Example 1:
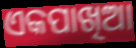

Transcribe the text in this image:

ଏକପାଖିଆ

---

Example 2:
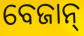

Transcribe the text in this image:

ବେଜାନ୍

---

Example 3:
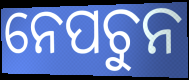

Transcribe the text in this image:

ନେପଚୁନ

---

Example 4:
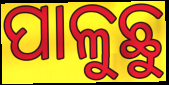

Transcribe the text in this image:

ପାଳୁଛୁ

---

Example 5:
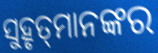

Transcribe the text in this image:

ସୁହୃତ୍‌ମାନଙ୍କର